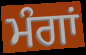
ਮੰਗਾਂ